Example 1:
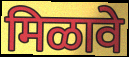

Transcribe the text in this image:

मिळावे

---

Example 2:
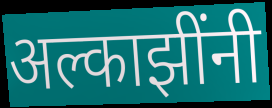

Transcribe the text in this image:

अल्काझींनी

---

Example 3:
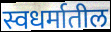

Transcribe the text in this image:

स्वधर्मातील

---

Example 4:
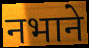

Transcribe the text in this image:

नभाने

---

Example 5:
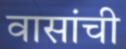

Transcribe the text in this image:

वासांची